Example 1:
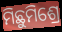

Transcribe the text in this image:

ମିଛୁମିଶ୍ରେ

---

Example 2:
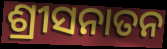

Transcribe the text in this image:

ଶ୍ରୀସନାତନ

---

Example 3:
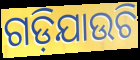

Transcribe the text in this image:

ଗଡ଼ିଯାଉଚି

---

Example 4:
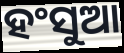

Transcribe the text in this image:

ହଂସୁଆ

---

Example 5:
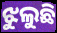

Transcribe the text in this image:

ଝୁଲୁଛି